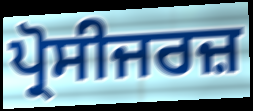
ਪ੍ਰੋਸੀਜਰਜ਼